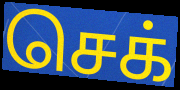
செக்